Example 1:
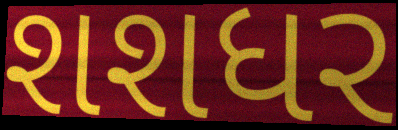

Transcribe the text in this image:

શશધર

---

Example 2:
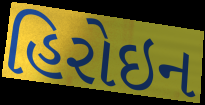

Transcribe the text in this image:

હિરોઇન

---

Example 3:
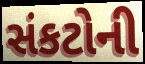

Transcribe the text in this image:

સંકટોની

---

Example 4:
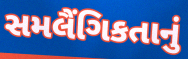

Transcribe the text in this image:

સમલૈંગિકતાનું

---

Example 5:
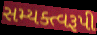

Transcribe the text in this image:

સમ્યક્ત્વરૂપી